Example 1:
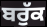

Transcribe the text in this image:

ਬਰੁੱਕ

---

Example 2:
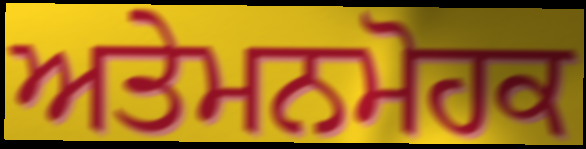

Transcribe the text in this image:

ਅਤੇਮਨਮੋਹਕ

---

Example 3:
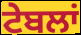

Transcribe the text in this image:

ਟੇਬਲਾਂ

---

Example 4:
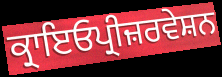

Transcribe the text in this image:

ਕ੍ਰਾਇਓਪ੍ਰੀਜ਼ਰਵੇਸ਼ਨ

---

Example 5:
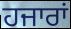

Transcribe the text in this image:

ਹਜਾਰਾਂ